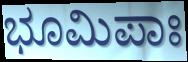
ಭೂಮಿಪಾಃ